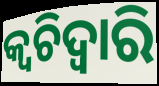
କ୍ଵଚିଦ୍ୱାରି